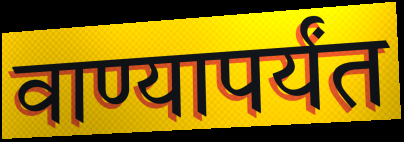
वाण्यापर्यंत